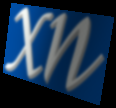
xn